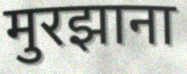
मुरझाना